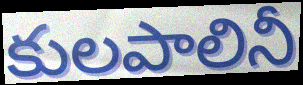
కులపాలినీ